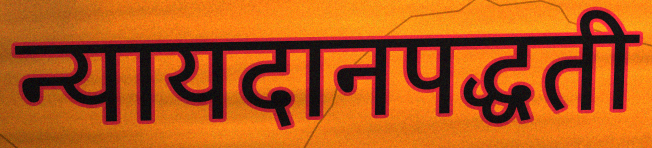
न्यायदानपद्धती